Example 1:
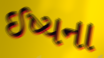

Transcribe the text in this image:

ઈષ્યના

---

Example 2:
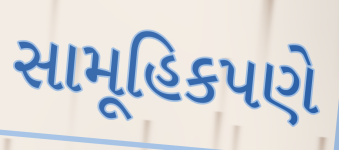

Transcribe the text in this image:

સામૂહિકપણે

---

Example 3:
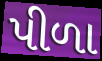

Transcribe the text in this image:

પીળા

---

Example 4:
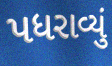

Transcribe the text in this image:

પધરાવ્યું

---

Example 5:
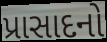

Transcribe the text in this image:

પ્રાસાદનો